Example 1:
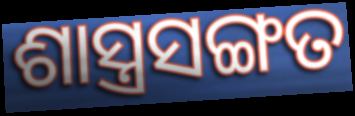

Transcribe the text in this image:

ଶାସ୍ତ୍ରସଙ୍ଗତ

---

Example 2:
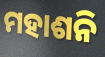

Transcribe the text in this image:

ମହାଶନି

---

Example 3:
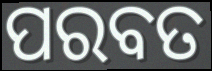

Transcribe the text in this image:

ପରବତ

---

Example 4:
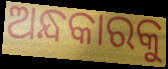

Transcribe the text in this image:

ଅନ୍ଧକାରକୁ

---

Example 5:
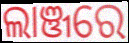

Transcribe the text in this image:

ଲାଞ୍ଜରେ